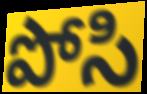
పోసి